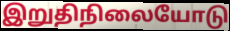
இறுதிநிலையோடு